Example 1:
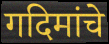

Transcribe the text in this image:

गदिमांचे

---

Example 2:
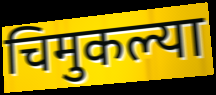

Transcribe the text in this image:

चिमुकल्या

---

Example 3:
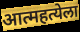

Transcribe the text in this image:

आत्महत्येला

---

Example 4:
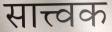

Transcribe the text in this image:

सात्त्वक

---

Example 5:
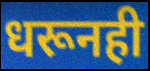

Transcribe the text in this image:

धरूनही